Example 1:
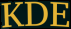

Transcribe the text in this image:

KDE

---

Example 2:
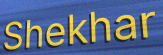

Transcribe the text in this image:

Shekhar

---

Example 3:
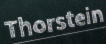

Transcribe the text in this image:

Thorstein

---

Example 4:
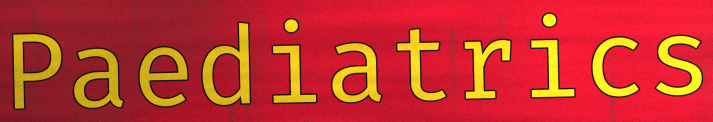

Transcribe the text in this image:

Paediatrics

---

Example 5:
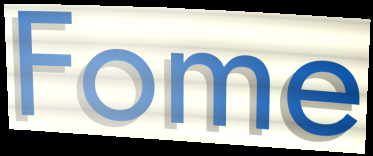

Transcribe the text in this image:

Fome